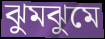
ঝুমঝুমে